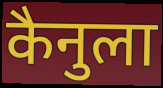
कैनुला